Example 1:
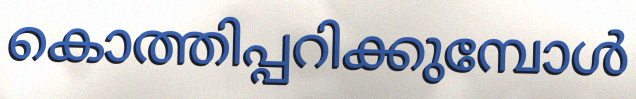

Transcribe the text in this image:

കൊത്തിപ്പറിക്കുമ്പോൾ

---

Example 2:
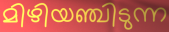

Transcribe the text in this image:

മിഴിയഞ്ചിടുന്ന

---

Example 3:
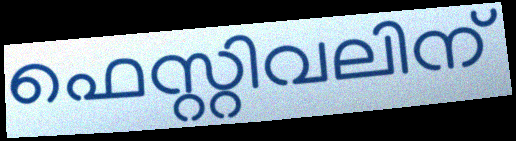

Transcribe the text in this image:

ഫെസ്റ്റിവലിന്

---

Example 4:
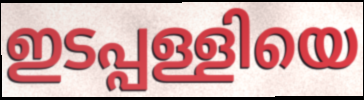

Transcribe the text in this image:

ഇടപ്പള്ളിയെ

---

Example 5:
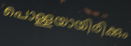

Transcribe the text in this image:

പൊള്ളയായിരിക്കും